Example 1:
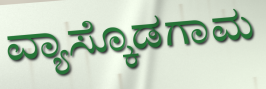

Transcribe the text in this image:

ವ್ಯಾಸ್ಕೊಡಗಾಮ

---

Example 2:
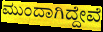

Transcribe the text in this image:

ಮುಂದಾಗಿದ್ದೇವೆ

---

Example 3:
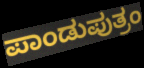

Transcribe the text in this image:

ಪಾಂಡುಪುತ್ರಂ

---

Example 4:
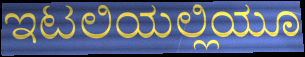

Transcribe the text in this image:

ಇಟಲಿಯಲ್ಲಿಯೂ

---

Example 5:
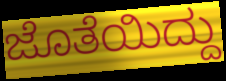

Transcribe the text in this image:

ಜೊತೆಯಿದ್ದು